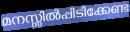
മനസ്സിൽപ്പിടിക്കേണ്ട